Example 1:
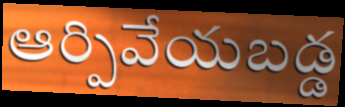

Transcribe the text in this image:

ఆర్పివేయబడ్డ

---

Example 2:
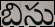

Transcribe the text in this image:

బిసు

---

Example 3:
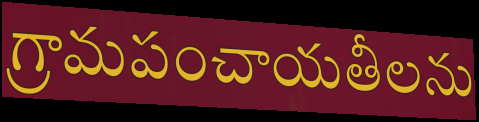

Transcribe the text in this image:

గ్రామపంచాయతీలను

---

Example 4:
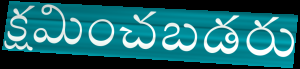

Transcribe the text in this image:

క్షమించబడరు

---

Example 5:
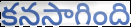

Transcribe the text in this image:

కనసాగింది